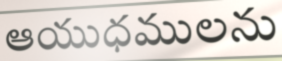
ఆయుధములను